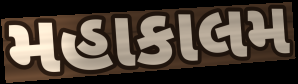
મહાકાલમ